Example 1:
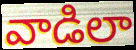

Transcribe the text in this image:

వాడిలా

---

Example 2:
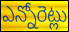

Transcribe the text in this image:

ఎన్నోరెట్లు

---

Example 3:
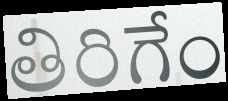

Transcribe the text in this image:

తిరిగేం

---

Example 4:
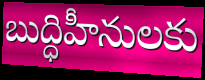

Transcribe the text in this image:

బుద్ధిహీనులకు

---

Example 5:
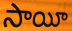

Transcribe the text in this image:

సాయీ